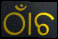
ଠାଁଚ